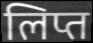
लिप्त